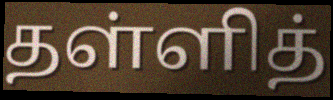
தள்ளித்